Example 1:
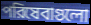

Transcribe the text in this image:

পরিষেবাগুলো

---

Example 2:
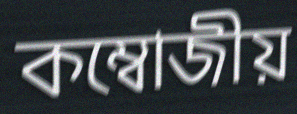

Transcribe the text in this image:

কম্বোজীয়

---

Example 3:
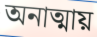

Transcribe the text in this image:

অনাত্মায়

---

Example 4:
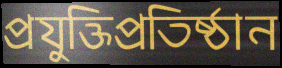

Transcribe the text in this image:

প্রযুক্তিপ্রতিষ্ঠান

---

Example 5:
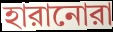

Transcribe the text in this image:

হারানোরা